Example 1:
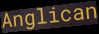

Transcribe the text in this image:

Anglican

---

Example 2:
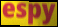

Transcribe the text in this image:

espy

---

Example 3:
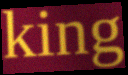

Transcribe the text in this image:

king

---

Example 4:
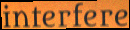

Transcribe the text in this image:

interfere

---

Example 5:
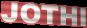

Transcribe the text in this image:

JOTHI